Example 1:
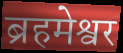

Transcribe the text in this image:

ब्रहमेश्वर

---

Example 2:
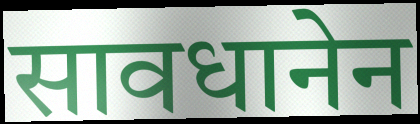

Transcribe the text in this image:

सावधानेन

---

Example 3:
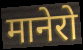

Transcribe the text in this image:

मानेरो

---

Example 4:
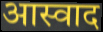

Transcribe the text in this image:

आस्‍वाद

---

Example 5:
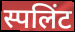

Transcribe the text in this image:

स्पलिंट